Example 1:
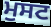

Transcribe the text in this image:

ਮੁਸਟ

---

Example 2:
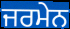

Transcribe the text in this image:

ਜਰਮੇਨ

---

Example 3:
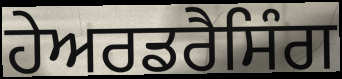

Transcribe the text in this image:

ਹੇਅਰਡਰੈਸਿੰਗ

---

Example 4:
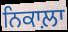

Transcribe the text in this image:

ਨਿਕਾਲ਼ਾ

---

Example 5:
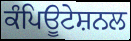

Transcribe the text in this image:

ਕੰਪਿਊਟੇਸ਼ਨਲ